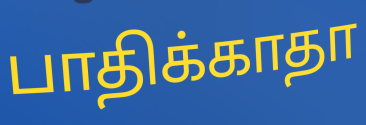
பாதிக்காதா